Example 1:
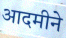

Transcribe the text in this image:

आदमीने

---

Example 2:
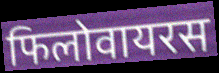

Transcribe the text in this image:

फिलोवायरस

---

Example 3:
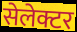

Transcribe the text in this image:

सेलेक्टर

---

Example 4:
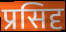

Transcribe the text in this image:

प्रसिदृ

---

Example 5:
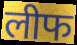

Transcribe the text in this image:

लीफ